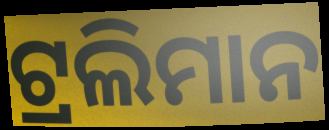
ଟ୍ରଲିମାନ